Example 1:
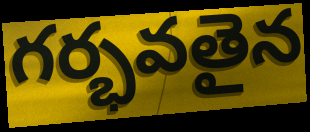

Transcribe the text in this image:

గర్భవతైన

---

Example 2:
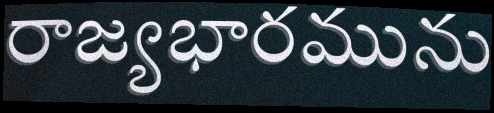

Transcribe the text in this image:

రాజ్యభారమును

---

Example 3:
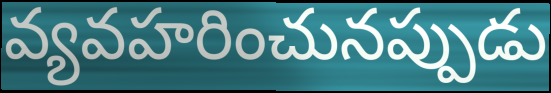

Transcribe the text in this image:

వ్యవహరించునప్పుడు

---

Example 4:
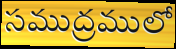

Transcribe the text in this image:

సముద్రములో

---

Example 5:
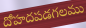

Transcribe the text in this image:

దోహదపడగలము